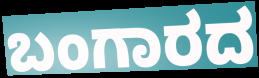
ಬಂಗಾರದ